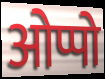
ओप्पो